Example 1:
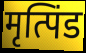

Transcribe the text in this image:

मृत्पिंड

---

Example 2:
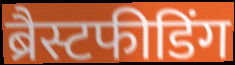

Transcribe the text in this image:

ब्रैस्टफीडिंग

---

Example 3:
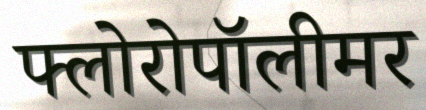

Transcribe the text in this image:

फ्लोरोपॉलीमर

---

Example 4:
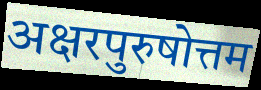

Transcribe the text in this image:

अक्षरपुरुषोत्तम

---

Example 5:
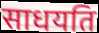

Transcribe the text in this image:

साधयति